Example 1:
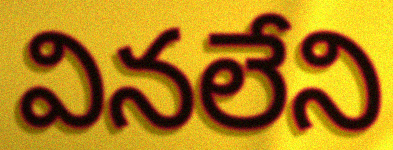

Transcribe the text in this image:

వినలేని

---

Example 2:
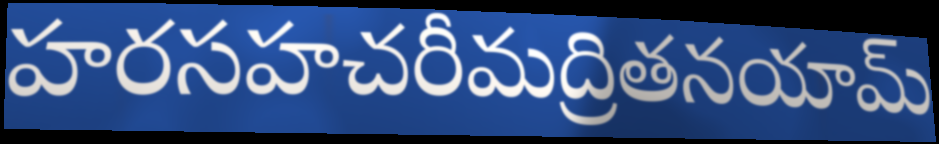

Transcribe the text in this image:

హరసహచరీమద్రితనయామ్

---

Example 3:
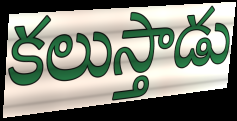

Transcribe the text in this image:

కలుస్తాడు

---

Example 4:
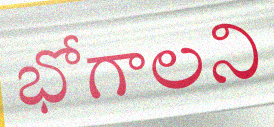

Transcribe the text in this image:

భోగాలని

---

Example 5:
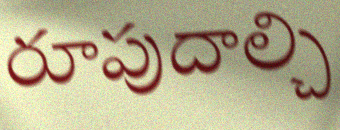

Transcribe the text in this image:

రూపుదాల్చి